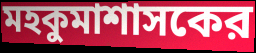
মহকুমাশাসকের